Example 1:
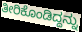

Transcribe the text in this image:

ತೀರಿಕೊಂಡಿದ್ದನ್ನು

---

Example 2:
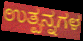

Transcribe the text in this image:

ಉತ್ಪನ್ನಗಳ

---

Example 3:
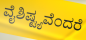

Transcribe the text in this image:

ವೈಶಿಷ್ಟ್ಯವೆಂದರೆ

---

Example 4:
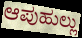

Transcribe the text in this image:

ಆಪುಹುಲ್ಲು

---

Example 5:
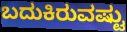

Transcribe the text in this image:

ಬದುಕಿರುವಷ್ಟು